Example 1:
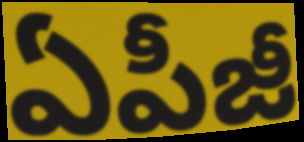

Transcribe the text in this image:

ఏపీజీ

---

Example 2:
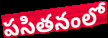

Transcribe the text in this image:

పసితనంలో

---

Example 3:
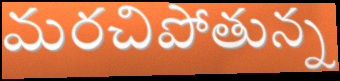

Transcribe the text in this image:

మరచిపోతున్న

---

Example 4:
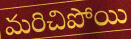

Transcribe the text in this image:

మరిచిపోయి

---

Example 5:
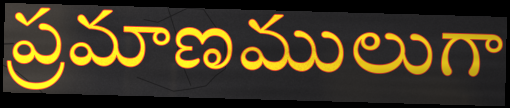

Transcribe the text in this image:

ప్రమాణములుగా